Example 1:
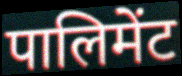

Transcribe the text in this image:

पालिमेंट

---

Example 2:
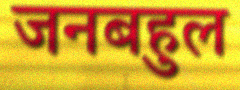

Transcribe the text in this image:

जनबहुल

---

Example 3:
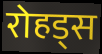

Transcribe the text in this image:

रोहड्स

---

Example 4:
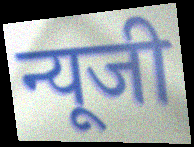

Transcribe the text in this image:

न्यूजी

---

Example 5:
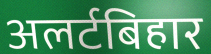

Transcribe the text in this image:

अलर्टबिहार